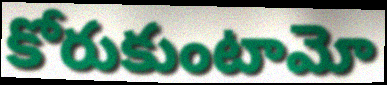
కోరుకుంటామో